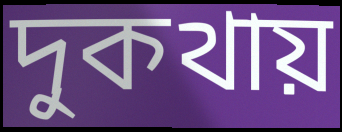
দুকথায়